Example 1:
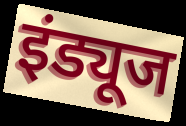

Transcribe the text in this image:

इंड्यूज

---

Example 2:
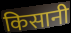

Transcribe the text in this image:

किसानी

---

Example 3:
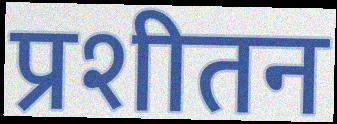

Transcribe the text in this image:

प्रशीतन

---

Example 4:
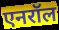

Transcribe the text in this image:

एनरॉल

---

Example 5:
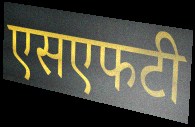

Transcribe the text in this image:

एसएफटी